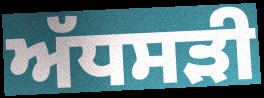
ਅੱਧਸੜੀ